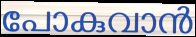
പോകുവാൻ